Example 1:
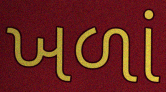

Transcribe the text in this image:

ખળાં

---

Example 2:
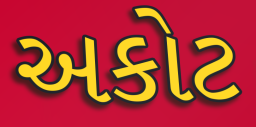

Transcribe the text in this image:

અકોટ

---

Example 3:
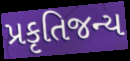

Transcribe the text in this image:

પ્રકૃતિજન્ય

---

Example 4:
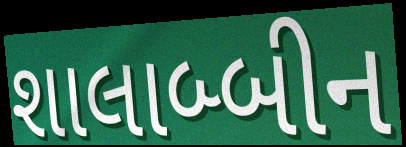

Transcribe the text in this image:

શાલાબ્બીન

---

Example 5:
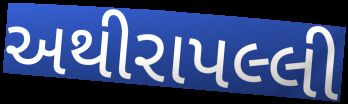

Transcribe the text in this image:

અથીરાપલ્લી